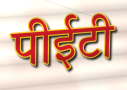
पीईटी